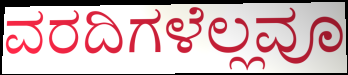
ವರದಿಗಳೆಲ್ಲವೂ